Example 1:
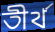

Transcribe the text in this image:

তীর্থ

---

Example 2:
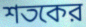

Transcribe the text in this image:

শতকের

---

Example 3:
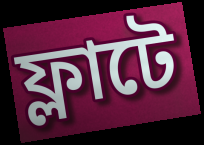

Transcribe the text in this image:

ফ্লাটে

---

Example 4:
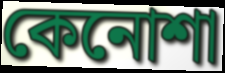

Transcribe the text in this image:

কেনোশা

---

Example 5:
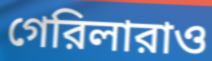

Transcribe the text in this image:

গেরিলারাও